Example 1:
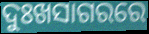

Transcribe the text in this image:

ଦୁଃଖସାଗରରେ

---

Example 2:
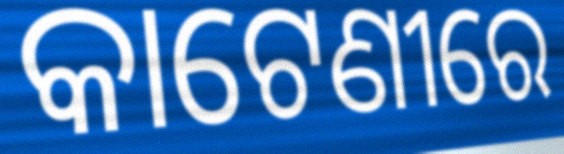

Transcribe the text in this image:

କାଟେଣୀରେ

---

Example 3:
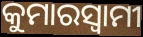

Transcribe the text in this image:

କୁମାରସ୍ୱାମୀ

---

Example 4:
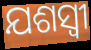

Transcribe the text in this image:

ଯଶସ୍ବୀ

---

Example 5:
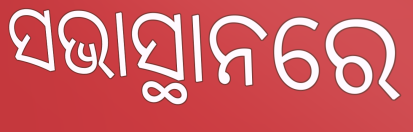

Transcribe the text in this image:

ସଭାସ୍ଥାନରେ